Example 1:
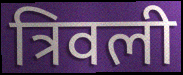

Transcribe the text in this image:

त्रिवली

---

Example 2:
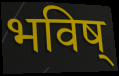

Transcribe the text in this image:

भविष्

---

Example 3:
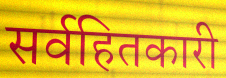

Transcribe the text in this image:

सर्वहितकारी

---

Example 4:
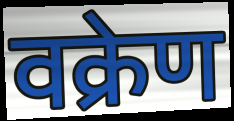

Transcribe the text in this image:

वक्रेण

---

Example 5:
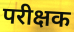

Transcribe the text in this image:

परीक्षक